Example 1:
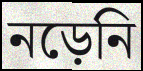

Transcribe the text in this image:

নড়েনি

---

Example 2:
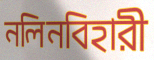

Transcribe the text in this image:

নলিনবিহারী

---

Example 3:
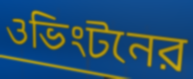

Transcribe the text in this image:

ওভিংটনের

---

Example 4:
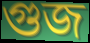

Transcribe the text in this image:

গুজ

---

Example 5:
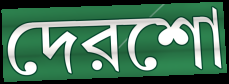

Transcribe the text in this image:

দেরশো